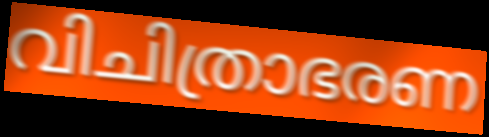
വിചിത്രാഭരണ